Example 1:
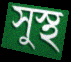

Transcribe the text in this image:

সুস্থ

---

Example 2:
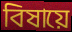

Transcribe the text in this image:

বিষায়ে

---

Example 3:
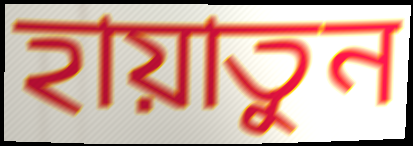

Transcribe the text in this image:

হায়াতুন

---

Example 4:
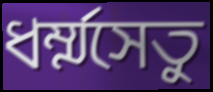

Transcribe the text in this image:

ধর্ম্মসেতু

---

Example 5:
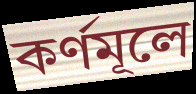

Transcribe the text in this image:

কর্ণমূলে